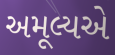
અમૂલ્યએ